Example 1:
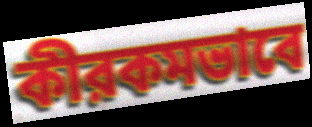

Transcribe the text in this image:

কীরকমভাবে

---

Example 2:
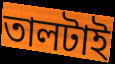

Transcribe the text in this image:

তালটাই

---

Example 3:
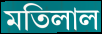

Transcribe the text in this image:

মতিলাল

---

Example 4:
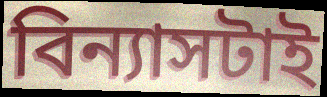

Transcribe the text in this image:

বিন্যাসটাই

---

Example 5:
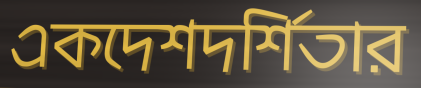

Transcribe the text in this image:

একদেশদর্শিতার